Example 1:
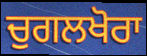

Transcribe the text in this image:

ਚੁਗਲਖੋਰਾ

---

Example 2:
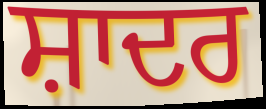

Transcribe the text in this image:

ਸ਼ਾਦਰ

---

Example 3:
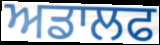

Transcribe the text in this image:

ਅਡਾਲਫ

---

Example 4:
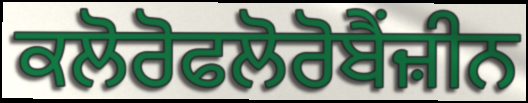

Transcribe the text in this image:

ਕਲੋਰੋਫਲੋਰੋਬੈਂਜ਼ੀਨ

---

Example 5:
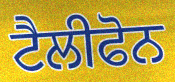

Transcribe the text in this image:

ਟੈਲੀਫੋਨ